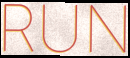
RUN